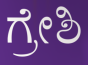
ಗ್ರೇಶಿ